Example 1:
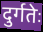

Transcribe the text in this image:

दुर्गतेः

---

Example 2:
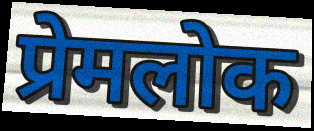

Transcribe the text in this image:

प्रेमलोक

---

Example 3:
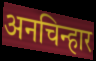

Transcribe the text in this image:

अनचिन्हार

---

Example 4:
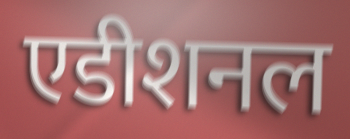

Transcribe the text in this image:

एडीशनल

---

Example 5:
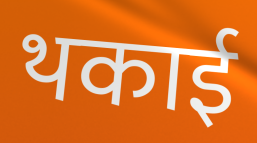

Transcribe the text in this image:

थकाई